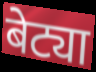
बेट्या